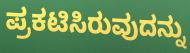
ಪ್ರಕಟಿಸಿರುವುದನ್ನು